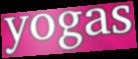
yogas